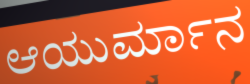
ಆಯುರ್ಮಾನ